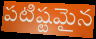
పటిష్టమైన